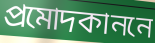
প্রমোদকাননে